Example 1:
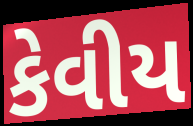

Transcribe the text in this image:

કેવીય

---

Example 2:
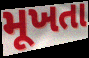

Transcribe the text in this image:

મૂખતા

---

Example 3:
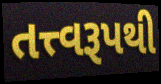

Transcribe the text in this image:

તત્ત્વરૂપથી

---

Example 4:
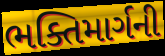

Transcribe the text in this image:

ભક્તિમાર્ગની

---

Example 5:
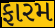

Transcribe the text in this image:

ફારમ